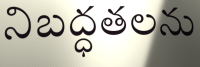
నిబద్ధతలను